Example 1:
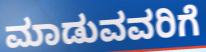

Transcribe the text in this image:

ಮಾಡುವವರಿಗೆ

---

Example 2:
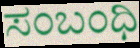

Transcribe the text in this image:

ಸಂಬಂಧಿ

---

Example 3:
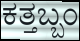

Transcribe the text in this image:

ಕತ್ತಬ್ಬಂ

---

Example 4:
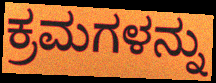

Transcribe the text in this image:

ಕ್ರಮಗಳನ್ನು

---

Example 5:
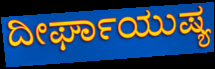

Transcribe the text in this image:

ದೀರ್ಘಾಯುಷ್ಯ